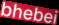
bhebei